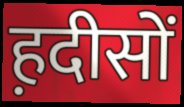
ह़दीसों